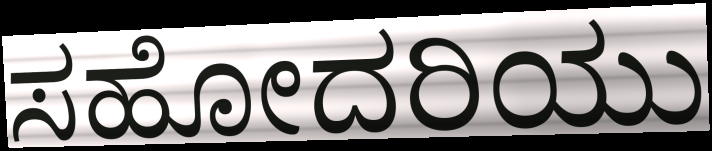
ಸಹೋದರಿಯು